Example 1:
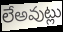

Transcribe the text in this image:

లేఅవుట్లు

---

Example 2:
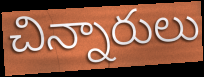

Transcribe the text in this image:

చిన్నారులు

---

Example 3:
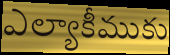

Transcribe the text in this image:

ఎల్యాకీముకు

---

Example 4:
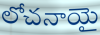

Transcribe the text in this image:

లోచనాయై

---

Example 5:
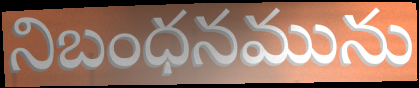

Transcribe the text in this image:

నిబంధనమును